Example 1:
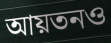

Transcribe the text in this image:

আয়তনও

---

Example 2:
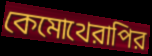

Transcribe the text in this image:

কেমোথেরাপির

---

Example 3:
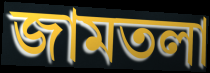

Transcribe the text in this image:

জামতলা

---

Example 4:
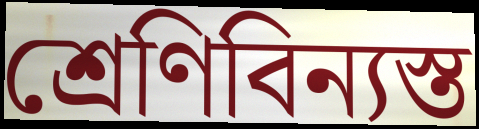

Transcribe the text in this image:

শ্রেণিবিন্যস্ত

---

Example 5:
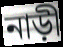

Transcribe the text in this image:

নাড়ী